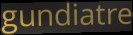
gundiatre